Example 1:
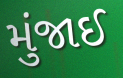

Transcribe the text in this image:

મુંજાઈ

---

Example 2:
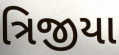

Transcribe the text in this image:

ત્રિજીયા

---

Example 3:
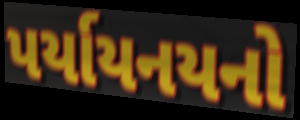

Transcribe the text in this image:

પર્યાયનયનો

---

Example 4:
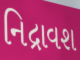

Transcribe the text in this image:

નિદ્રાવશ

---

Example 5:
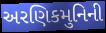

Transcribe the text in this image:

અરણિકમુનિની